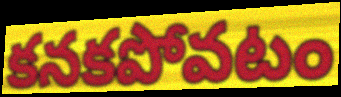
కనకపోవటం